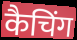
कैचिंग